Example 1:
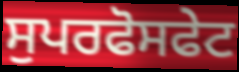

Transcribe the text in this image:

ਸੁਪਰਫੋਸਫੇਟ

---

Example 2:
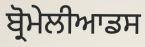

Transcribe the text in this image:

ਬ੍ਰੋਮੇਲੀਆਡਸ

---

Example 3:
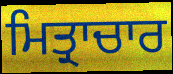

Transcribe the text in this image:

ਮਿਤ੍ਰਾਚਾਰ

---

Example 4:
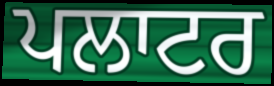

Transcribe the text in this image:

ਪਲਾਟਰ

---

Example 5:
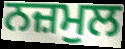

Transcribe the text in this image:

ਨਜ਼ਮੁਲ